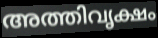
അത്തിവൃക്ഷം